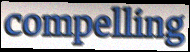
compelling